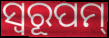
ସ୍ୱରୂପମ୍